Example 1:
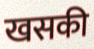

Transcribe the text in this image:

खसकी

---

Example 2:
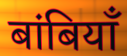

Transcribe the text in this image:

बांबियाँ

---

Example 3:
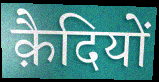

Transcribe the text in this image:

क़ैदियों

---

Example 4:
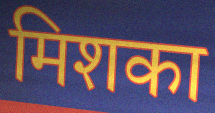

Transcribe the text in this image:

मिशका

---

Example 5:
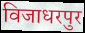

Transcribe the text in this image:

विजाधरपुर